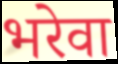
भरेवा